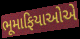
ભૂમાફિયાઓએ